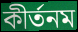
কীর্তনম